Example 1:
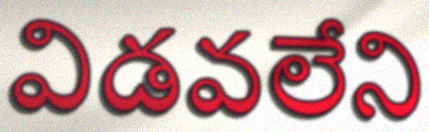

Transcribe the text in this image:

విడవలేని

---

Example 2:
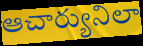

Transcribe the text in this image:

ఆచార్యునిలా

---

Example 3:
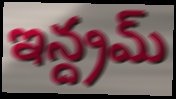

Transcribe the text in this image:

ఇన్ద్రమ్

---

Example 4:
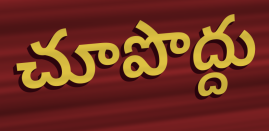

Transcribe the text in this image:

చూపొద్దు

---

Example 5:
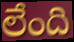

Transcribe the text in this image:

లేంది